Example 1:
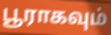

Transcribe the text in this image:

பூராகவும்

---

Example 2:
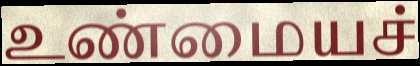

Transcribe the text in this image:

உண்மையச்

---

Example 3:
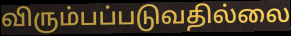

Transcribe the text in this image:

விரும்பப்படுவதில்லை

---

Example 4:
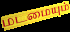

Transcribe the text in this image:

மடமையும்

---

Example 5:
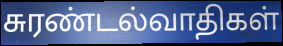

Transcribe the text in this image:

சுரண்டல்வாதிகள்